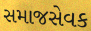
સમાજસેવક